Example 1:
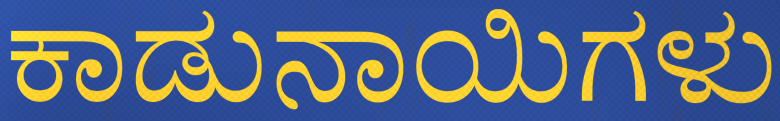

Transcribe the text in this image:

ಕಾಡುನಾಯಿಗಳು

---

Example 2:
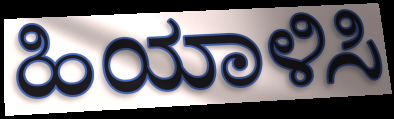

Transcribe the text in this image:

ಹಿಯಾಳಿಸಿ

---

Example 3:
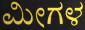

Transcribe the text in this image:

ಮೀಗಳ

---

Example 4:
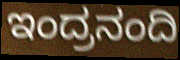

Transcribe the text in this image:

ಇಂದ್ರನಂದಿ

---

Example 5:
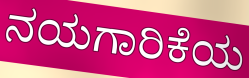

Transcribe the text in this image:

ನಯಗಾರಿಕೆಯ